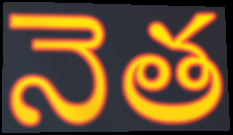
నెత